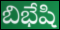
బిభేషి